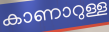
കാണാറുള്ള